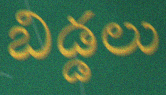
బిడ్డలు